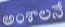
అంశాలనే